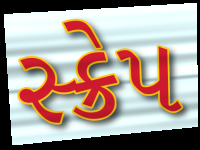
સ્ક્રેપ